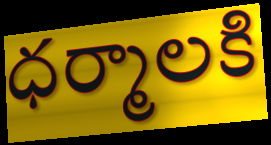
ధర్మాలకి